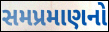
સમપ્રમાણનો